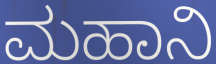
ಮಹಾನಿ